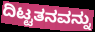
ದಿಟ್ಟತನವನ್ನು